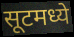
सूटमध्ये